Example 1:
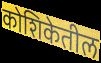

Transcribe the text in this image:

कोशिकेतील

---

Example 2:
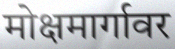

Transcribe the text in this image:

मोक्षमार्गावर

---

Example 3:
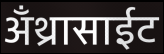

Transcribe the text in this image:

अँथ्रासाईट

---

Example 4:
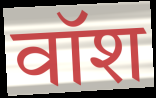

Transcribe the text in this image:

वॉश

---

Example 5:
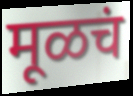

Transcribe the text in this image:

मूळचं